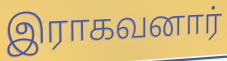
இராகவனார்